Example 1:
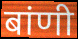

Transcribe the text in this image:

बांणी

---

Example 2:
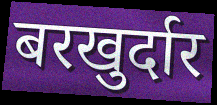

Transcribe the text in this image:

बरखुर्दार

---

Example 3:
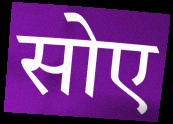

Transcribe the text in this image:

सोए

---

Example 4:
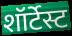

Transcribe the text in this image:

शॉर्टेस्ट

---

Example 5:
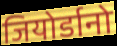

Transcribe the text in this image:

जियोर्डानो